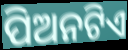
ପିଅନଟିଏ